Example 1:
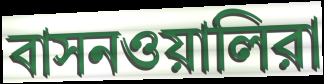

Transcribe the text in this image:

বাসনওয়ালিরা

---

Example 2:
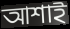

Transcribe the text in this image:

আশাই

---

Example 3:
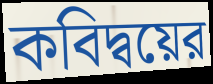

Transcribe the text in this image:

কবিদ্বয়ের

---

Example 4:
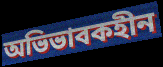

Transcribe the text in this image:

অভিভাবকহীন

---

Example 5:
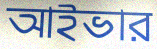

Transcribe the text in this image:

আইভার